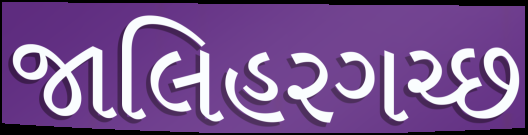
જાલિહરગચ્છ